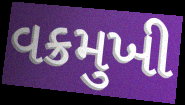
વક્રમુખી